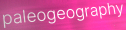
paleogeography